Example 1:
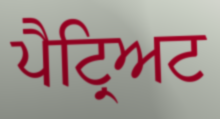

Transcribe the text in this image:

ਪੈਟ੍ਰਿਅਟ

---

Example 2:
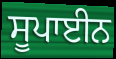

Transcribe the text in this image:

ਸੂਪਾਈਨ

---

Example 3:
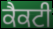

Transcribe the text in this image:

ਕੈਕਟੀ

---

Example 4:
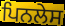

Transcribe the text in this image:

ਪਿਨਲੇਸ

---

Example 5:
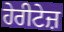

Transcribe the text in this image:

ਹੇਰੀਟੇਜ਼